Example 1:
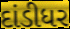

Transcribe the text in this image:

દાંડીધર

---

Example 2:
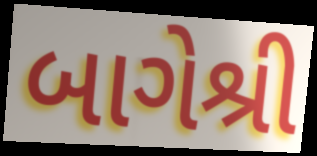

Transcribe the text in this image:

બાગેશ્રી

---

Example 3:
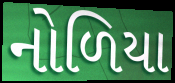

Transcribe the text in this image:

નોળિયા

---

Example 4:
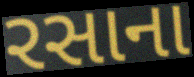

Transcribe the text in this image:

રસાના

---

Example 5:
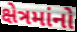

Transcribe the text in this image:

ક્ષેત્રમાંનો